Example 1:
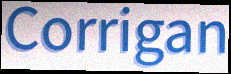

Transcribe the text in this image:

Corrigan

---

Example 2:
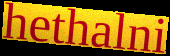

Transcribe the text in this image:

hethalni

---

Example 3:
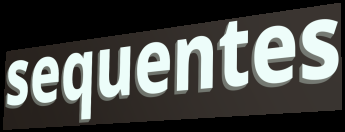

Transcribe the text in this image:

sequentes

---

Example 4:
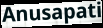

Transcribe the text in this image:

Anusapati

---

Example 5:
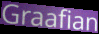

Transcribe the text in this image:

Graafian